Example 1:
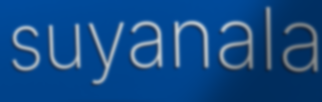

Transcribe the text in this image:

suyanala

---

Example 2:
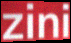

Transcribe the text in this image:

zini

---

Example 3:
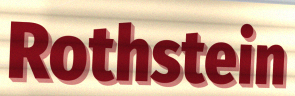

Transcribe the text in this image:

Rothstein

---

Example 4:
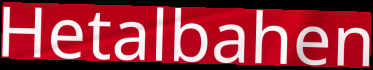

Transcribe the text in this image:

Hetalbahen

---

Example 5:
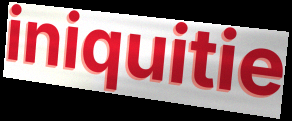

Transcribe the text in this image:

iniquitie